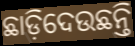
ଛାଡ଼ିଦେଉଛନ୍ତି